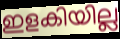
ഇളകിയില്ല